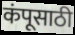
कंपूसाठी